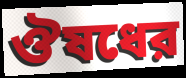
ঔষধের